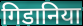
गिडानिया